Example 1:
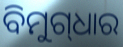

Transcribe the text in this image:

ବିମୁଗ୍‌ଧାର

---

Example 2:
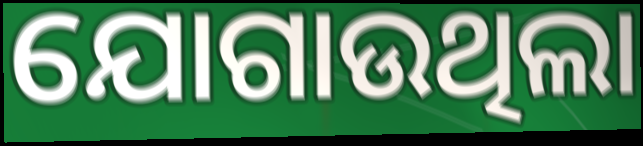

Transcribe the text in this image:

ଯୋଗାଉଥିଲା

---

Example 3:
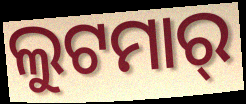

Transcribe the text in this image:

ଲୁଟମାର୍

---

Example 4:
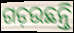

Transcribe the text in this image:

ଗଡ଼ଉଛନ୍ତି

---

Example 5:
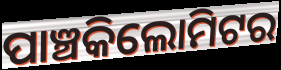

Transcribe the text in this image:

ପାଞ୍ଚକିଲୋମିଟର